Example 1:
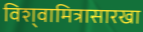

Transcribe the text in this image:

विश्वामित्रासारखा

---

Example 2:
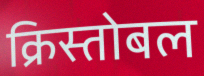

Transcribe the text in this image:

क्रिस्तोबल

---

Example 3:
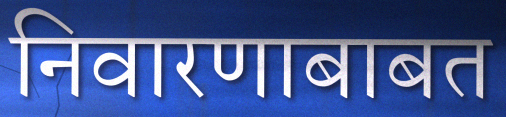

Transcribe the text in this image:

निवारणाबाबत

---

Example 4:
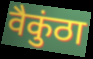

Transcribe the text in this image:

वैकुंठा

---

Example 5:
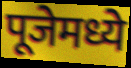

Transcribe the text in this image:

पूजेमध्ये